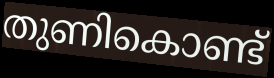
തുണികൊണ്ട്